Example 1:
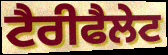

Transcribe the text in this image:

ਟੈਰੀਫੈਲੇਟ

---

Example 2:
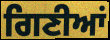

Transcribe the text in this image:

ਗਿਣੀਆਂ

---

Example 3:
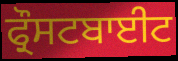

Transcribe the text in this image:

ਫ੍ਰੌਸਟਬਾਈਟ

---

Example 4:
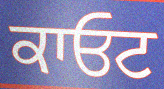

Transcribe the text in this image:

ਕਾਓਟ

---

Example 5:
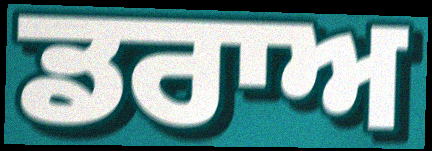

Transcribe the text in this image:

ਡਰਾਅ